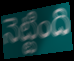
నెట్టింది